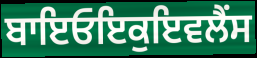
ਬਾਇਓਇਕੁਇਵਲੈਂਸ